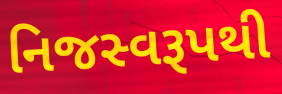
નિજસ્વરૂપથી